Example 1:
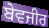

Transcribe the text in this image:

ਬੇਵਜੀਰ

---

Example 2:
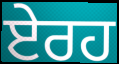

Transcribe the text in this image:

ਏਰਹ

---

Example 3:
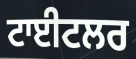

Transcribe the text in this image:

ਟਾਈਟਲਰ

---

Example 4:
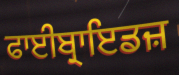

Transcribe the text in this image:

ਫਾਈਬ੍ਰਾਇਡਜ਼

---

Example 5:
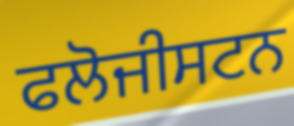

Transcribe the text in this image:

ਫਲੋਜੀਸਟਨ